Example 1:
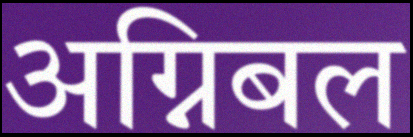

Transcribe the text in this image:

अग्निबल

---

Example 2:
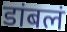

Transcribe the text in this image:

डांबलं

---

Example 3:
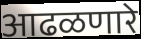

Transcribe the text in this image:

आढळणारे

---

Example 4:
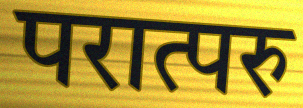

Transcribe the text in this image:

परात्परु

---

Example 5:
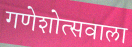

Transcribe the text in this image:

गणेशोत्सवाला